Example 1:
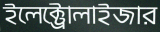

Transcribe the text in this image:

ইলেক্ট্রোলাইজার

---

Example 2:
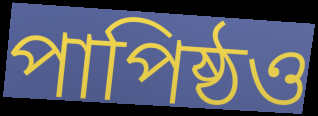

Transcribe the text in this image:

পাপিষ্ঠও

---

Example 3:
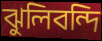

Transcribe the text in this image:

ঝুলিবন্দি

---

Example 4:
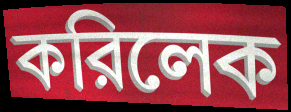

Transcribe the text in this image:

করিলেক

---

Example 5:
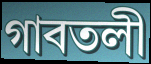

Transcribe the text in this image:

গাবতলী